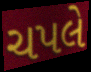
ચપલે